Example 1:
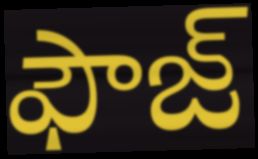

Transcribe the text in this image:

ఫౌజ్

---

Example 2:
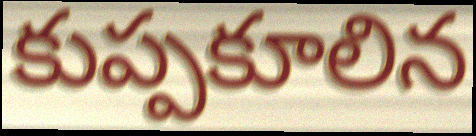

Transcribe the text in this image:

కుప్పకూలిన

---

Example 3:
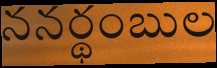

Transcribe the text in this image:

ననర్థంబుల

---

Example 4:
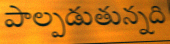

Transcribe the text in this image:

పాల్పడుతున్నది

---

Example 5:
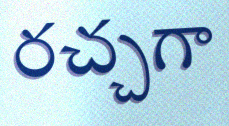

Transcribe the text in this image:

రచ్చగా